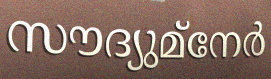
സൗദ്യുമ്നേർ